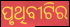
ପୃଥିବୀଟିର